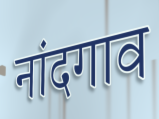
नांदगाव